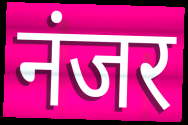
नंजर